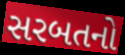
સરબતનો